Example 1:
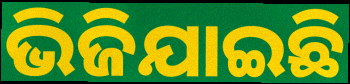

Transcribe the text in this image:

ଭିଜିଯାଇଛି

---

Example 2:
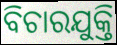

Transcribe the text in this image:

ବିଚାରଯୁକ୍ତି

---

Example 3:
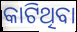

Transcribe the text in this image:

କାଟିଥିବା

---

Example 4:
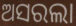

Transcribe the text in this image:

ଅସରଲା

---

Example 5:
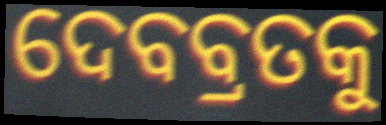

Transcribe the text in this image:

ଦେବବ୍ରତକୁ